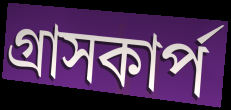
গ্রাসকার্প